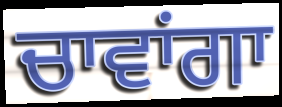
ਚਾਵਾਂਗਾ